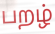
பறழ்